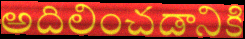
అదిలించడానికి